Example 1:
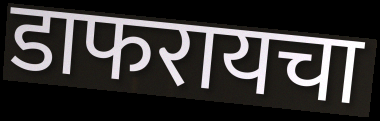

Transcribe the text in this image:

डाफरायचा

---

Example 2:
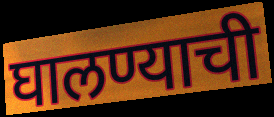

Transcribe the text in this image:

घालण्याची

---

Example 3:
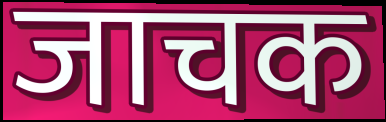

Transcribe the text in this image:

जाचक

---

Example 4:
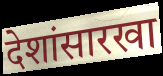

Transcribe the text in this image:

देशांसारखा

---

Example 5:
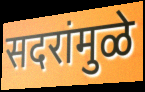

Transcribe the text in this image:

सदरांमुळे